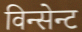
विन्सेन्ट